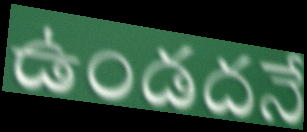
ఉండదనే